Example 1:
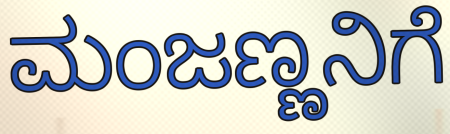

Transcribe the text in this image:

ಮಂಜಣ್ಣನಿಗೆ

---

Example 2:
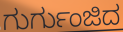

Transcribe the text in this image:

ಗುರ್ಗುಂಜಿದ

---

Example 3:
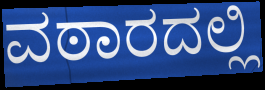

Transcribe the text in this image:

ವಠಾರದಲ್ಲಿ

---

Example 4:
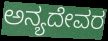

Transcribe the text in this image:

ಅನ್ಯದೇವರ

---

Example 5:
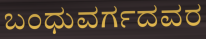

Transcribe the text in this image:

ಬಂಧುವರ್ಗದವರ